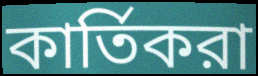
কার্তিকরা